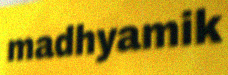
madhyamik